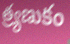
త్ర్యణుకం